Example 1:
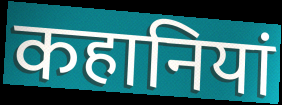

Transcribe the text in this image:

कहानियां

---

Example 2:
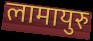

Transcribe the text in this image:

लामायुरु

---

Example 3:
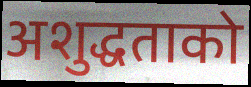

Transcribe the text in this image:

अशुद्धताको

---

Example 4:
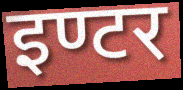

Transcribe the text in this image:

इण्टर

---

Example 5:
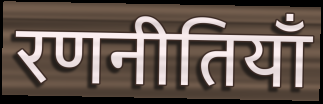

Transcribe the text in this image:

रणनीतियाँ